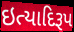
ઇત્યાદિરૂપ